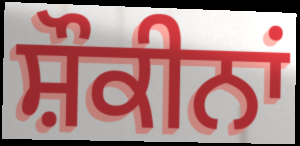
ਸ਼ੌਕੀਨਾਂ